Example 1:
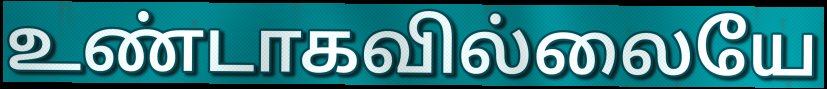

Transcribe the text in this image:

உண்டாகவில்லையே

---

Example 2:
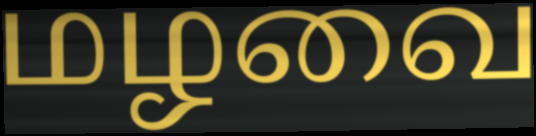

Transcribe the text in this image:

மழவை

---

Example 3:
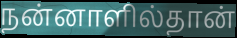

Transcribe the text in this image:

நன்னாளில்தான்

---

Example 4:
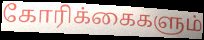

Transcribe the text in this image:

கோரிக்கைகளும்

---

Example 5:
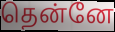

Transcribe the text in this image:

தென்னே